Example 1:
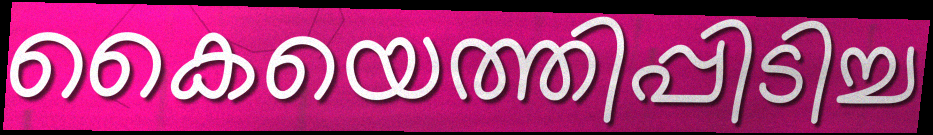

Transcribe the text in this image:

കൈയെത്തിപ്പിടിച്ച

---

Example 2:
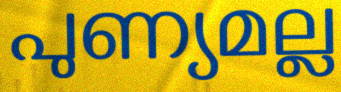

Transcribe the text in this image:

പുണ്യമല്ല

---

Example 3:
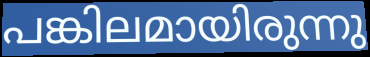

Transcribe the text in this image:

പങ്കിലമായിരുന്നു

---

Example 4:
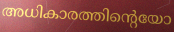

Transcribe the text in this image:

അധികാരത്തിന്റെയോ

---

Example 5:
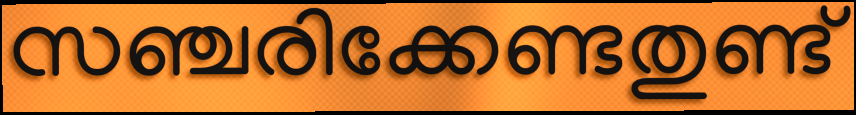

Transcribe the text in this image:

സഞ്ചരിക്കേണ്ടതുണ്ട്